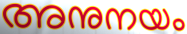
അനുനയം